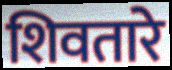
शिवतारे